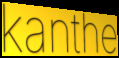
kanthe